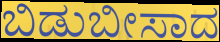
ಬಿಡುಬೀಸಾದ